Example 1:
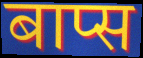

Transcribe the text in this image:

बाप्स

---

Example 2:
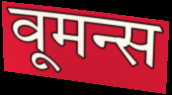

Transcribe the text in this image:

वूमन्स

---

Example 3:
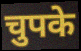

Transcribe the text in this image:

चुपके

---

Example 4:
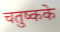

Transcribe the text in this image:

चतुष्कके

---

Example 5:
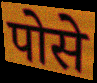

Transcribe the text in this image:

पोसे